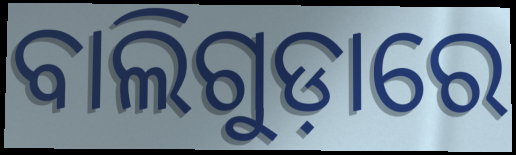
ବାଲିଗୁଡ଼ାରେ